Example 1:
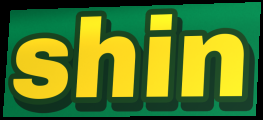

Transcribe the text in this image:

shin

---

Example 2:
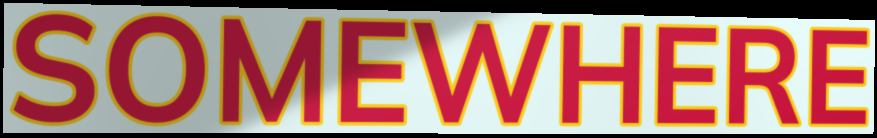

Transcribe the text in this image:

SOMEWHERE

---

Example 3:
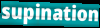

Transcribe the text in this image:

supination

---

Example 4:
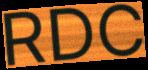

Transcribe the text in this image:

RDC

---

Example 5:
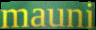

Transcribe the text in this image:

mauni